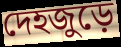
দেহজুড়ে